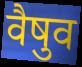
वैषुव